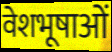
वेशभूषाओं